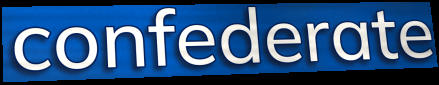
confederate